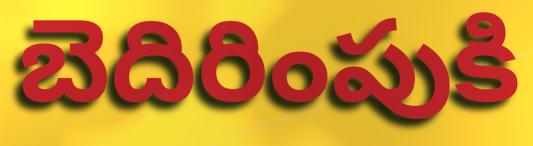
బెదిరింపుకి